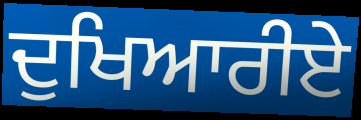
ਦੁਖਿਆਰੀਏ